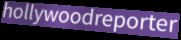
hollywoodreporter